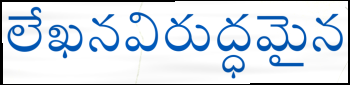
లేఖనవిరుద్ధమైన